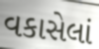
વકાસેલાં